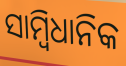
ସାମ୍ବିଧାନିକ